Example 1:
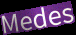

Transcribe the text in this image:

Medes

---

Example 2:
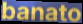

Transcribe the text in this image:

banato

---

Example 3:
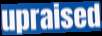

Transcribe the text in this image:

upraised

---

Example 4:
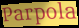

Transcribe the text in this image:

Parpola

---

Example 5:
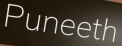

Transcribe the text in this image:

Puneeth